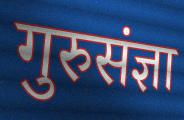
गुरुसंज्ञा